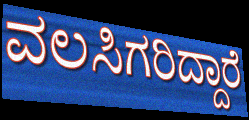
ವಲಸಿಗರಿದ್ದಾರೆ